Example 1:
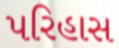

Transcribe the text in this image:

પરિહાસ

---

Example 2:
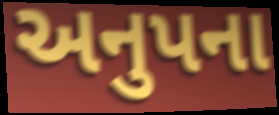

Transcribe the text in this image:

અનુપના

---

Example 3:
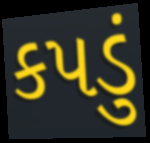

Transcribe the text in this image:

કપડું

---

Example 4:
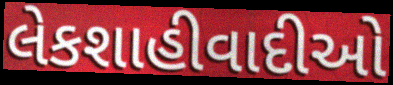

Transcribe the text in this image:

લેકશાહીવાદીઓ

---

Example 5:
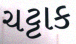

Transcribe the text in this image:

ચટ્ટાક